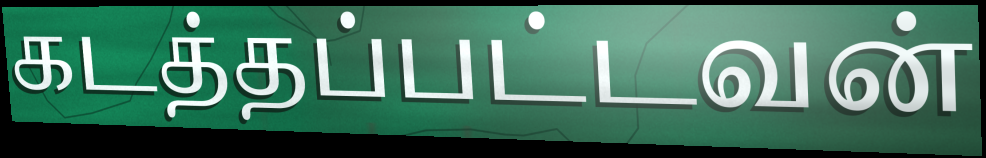
கடத்தப்பட்டவன்